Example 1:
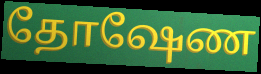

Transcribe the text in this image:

தோஷேண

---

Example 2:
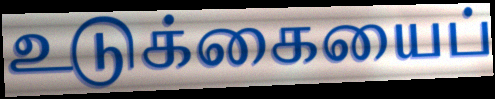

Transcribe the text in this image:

உடுக்கையைப்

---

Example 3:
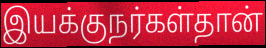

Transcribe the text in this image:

இயக்குநர்கள்தான்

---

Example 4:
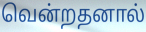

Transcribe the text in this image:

வென்றதனால்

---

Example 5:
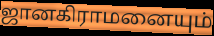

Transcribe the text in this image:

ஜானகிராமனையும்